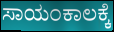
ಸಾಯಂಕಾಲಕ್ಕೆ